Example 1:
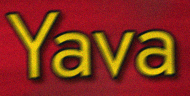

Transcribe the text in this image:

Yava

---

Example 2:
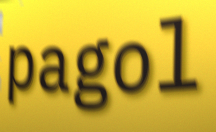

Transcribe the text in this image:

pagol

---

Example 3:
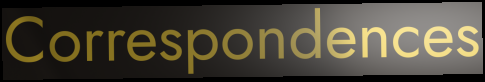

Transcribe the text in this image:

Correspondences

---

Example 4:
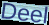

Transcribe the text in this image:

Deel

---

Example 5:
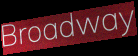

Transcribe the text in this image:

Broadway